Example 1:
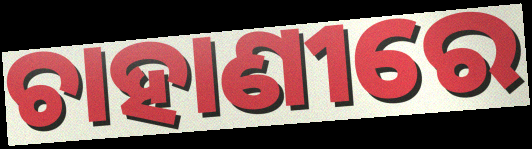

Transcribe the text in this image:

ଚାହାଣୀରେ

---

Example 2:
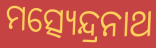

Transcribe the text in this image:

ମତ୍ସ୍ୟେନ୍ଦ୍ରନାଥ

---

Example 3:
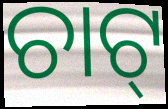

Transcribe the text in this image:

ଚାଟ୍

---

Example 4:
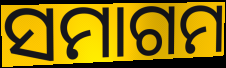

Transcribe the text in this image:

ସମାଗମ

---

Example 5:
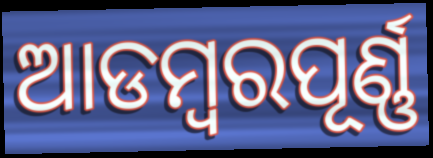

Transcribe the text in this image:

ଆଡମ୍ବରପୂର୍ଣ୍ଣ